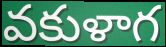
వకుళాగ